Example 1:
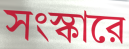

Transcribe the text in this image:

সংস্কারে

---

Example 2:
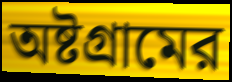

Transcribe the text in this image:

অষ্টগ্রামের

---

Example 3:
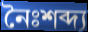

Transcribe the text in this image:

নৈঃশব্দ্য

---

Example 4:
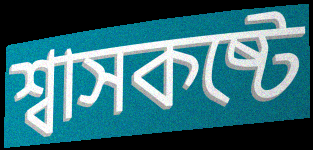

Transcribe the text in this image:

শ্বাসকষ্টে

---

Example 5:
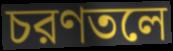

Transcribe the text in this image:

চরণতলে